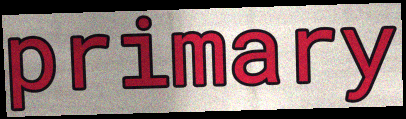
primary